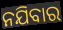
ନଯିବାର